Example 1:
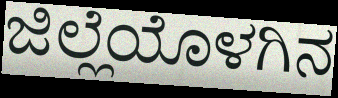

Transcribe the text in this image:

ಜಿಲ್ಲೆಯೊಳಗಿನ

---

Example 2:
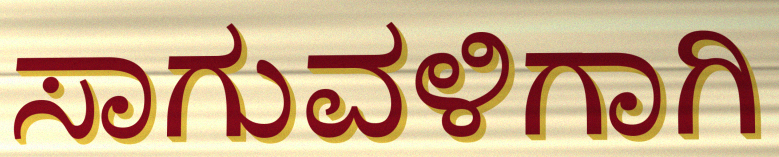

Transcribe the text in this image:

ಸಾಗುವಳಿಗಾಗಿ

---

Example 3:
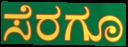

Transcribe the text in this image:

ಸೆರಗೂ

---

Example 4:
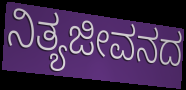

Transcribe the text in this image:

ನಿತ್ಯಜೀವನದ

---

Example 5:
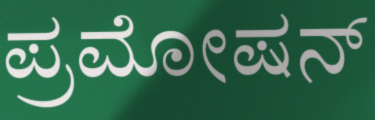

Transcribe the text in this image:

ಪ್ರಮೋಷನ್